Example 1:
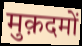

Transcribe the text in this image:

मुक़दमों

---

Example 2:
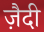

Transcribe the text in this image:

ज़ैदी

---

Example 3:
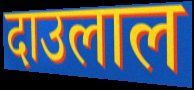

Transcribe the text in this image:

दाउलाल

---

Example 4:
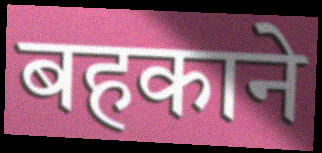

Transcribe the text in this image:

बहकाने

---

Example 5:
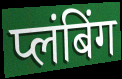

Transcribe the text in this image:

प्लंबिंग